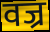
वज्र